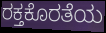
ರಕ್ತಕೊರತೆಯ